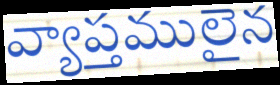
వ్యాప్తములైన